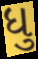
ધુ